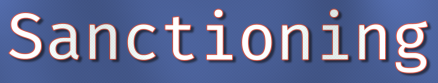
Sanctioning